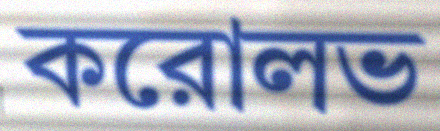
করোলভ